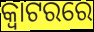
କ୍ୱାଟରରେ